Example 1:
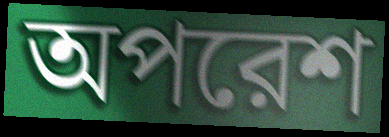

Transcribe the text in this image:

অপরেশ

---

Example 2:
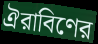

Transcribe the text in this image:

ঐরাবিণের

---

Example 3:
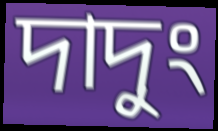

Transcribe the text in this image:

দাদুং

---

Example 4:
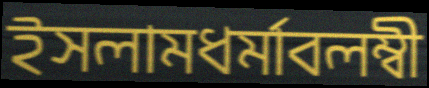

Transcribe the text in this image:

ইসলামধর্মাবলম্বী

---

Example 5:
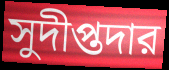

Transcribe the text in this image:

সুদীপ্তদার